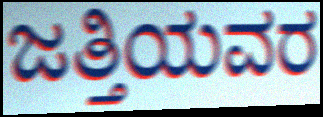
ಜತ್ತಿಯವರ